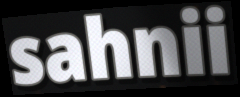
sahnii